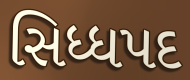
સિધ્ધપદ